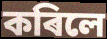
কৰিলে